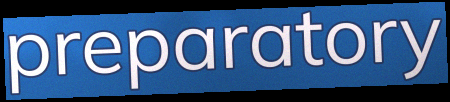
preparatory